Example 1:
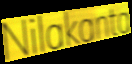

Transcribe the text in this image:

Nilakanta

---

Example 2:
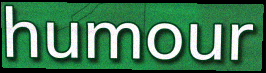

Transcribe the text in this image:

humour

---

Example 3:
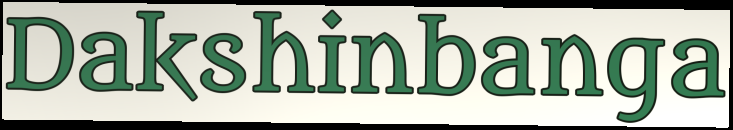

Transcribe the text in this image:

Dakshinbanga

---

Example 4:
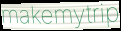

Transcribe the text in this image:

makemytrip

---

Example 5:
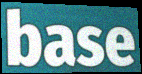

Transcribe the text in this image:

base